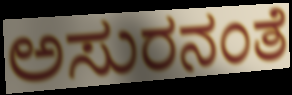
ಅಸುರನಂತೆ